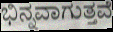
ಭಿನ್ನವಾಗುತ್ತವೆ